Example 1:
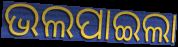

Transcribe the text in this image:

ଭଲପାଇଲା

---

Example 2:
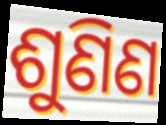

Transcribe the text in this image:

ଶୁଣିଣ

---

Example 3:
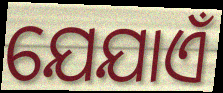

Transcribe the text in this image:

ଯେଯାଏଁ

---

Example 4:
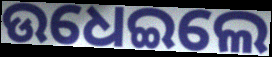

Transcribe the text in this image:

ଉଧେଇଲେ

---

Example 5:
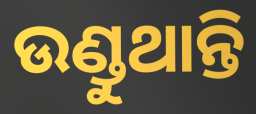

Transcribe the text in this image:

ଉଣ୍ଡୁଥାନ୍ତି